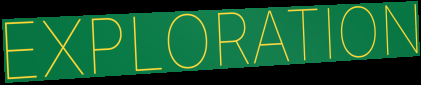
EXPLORATION